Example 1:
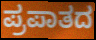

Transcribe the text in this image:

ಪ್ರಪಾತದ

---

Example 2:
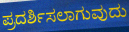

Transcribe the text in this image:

ಪ್ರದರ್ಶಿಸಲಾಗುವುದು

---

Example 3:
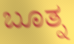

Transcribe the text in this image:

ಬೂತ್ನ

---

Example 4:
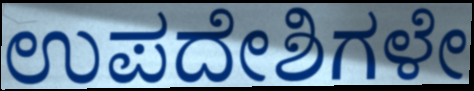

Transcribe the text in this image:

ಉಪದೇಶಿಗಳೇ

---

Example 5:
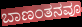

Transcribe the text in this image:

ಬಾಣಂತನವೂ